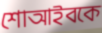
শোআইবকে